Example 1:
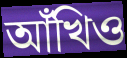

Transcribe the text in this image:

আঁখিও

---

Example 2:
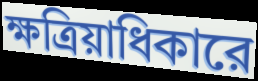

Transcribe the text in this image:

ক্ষত্রিয়াধিকারে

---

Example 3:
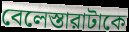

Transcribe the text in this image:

বেলেস্তারাটাকে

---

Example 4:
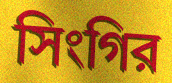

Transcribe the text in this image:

সিংগির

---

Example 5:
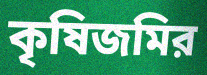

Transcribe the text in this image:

কৃষিজমির